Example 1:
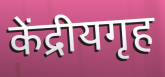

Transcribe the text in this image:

केंद्रीयगृह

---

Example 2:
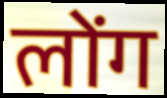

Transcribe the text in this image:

लोंग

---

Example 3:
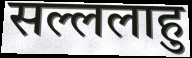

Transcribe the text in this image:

सल्ललाहु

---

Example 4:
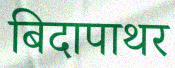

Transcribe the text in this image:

बिदापाथर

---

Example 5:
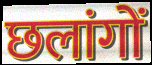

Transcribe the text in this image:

छलांगों